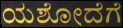
ಯಶೋದೆಗೆ